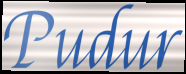
Pudur